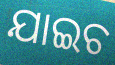
ଯାଇଚ